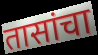
तासांचा